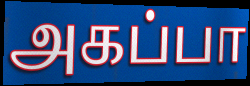
அகப்பா